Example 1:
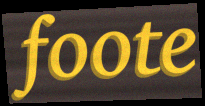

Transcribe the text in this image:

foote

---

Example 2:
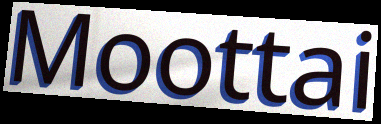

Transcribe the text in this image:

Moottai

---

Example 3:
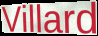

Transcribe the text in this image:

Villard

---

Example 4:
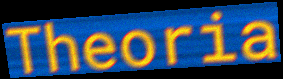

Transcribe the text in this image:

Theoria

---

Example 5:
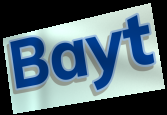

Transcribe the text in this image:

Bayt